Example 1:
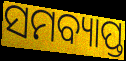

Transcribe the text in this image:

ସମବ୍ୟାପ୍ତ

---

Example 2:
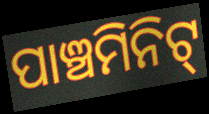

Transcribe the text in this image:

ପାଞ୍ଚମିନିଟ୍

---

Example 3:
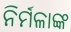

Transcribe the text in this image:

ନିର୍ମଳାଙ୍କ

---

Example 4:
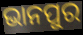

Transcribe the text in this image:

ଭାନପୁର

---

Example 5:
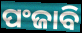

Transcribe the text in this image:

ପଂଜାବି